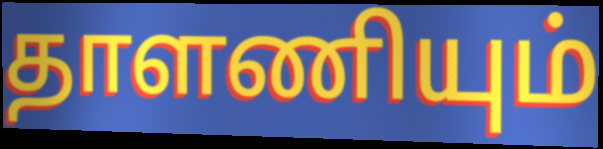
தாளணியும்